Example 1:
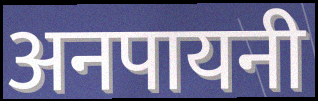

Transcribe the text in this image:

अनपायनी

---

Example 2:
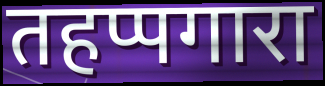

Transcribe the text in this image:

तहप्पगारा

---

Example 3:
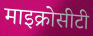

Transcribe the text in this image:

माइक्रोसीटी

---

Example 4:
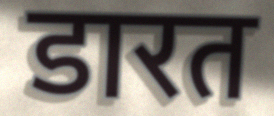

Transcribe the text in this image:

डारत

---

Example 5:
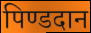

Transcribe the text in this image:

पिण्डदान